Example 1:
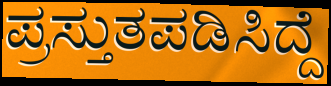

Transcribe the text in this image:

ಪ್ರಸ್ತುತಪಡಿಸಿದ್ದೆ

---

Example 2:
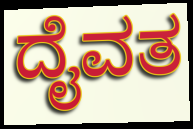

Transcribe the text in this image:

ದೈವತ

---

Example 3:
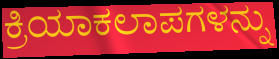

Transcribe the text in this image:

ಕ್ರಿಯಾಕಲಾಪಗಳನ್ನು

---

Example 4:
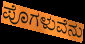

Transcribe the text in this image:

ಪೊಗಳುವೆನು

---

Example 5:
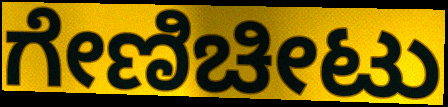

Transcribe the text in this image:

ಗೇಣಿಚೀಟು